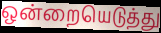
ஒன்றையெடுத்து